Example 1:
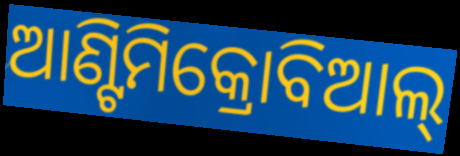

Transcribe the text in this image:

ଆଣ୍ଟିମିକ୍ରୋବିଆଲ୍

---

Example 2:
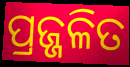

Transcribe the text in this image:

ପ୍ରଜ୍ଜଳିତ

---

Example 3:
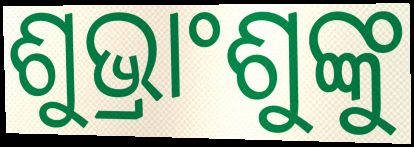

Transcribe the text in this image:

ଶୁଭ୍ରାଂଶୁଙ୍କୁ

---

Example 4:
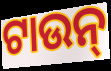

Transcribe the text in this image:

ଟାଉନ୍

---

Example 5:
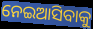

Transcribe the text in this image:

ନେଇଆସିବାକୁ